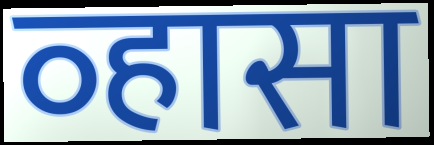
व्हासा